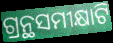
ଗ୍ରନ୍ଥସମୀକ୍ଷାଟି